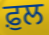
ਫ਼ੁਲ